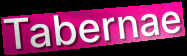
Tabernae